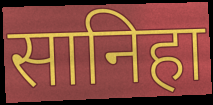
सानिहा